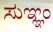
ಸುಞ್ಞಂ